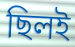
ছিলই